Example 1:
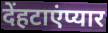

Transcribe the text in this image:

देंहटाएंप्यार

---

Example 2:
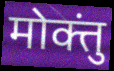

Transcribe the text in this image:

मोक्तुं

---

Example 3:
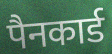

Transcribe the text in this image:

पैनकार्ड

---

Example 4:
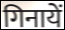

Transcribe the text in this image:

गिनायें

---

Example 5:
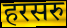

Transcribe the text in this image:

हरसरु